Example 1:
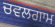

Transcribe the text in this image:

ਚਵਲਗਾਮ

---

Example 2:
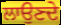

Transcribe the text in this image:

ਲਾਉਣਦੇ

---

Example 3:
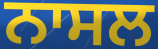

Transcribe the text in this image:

ਨਾਸਲ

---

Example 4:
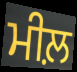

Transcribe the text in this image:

ਮੀਲ਼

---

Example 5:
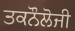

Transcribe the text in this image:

ਤਕਨੌਲੋਜੀ